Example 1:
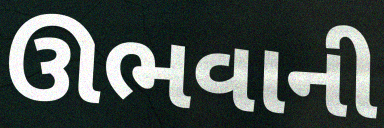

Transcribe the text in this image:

ઊભવાની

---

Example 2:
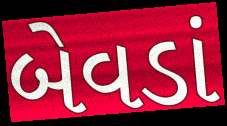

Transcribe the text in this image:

બેવડાં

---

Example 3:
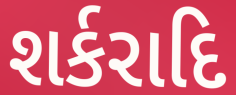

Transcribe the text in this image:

શર્કરાદિ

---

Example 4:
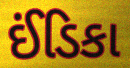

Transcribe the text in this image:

ઈંડિકા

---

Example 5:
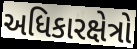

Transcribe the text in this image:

અધિકારક્ષેત્રો